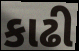
કાઢી